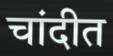
चांदीत